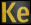
Ke